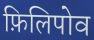
फ़िलिपोव